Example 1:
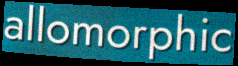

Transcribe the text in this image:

allomorphic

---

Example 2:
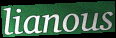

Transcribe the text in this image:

lianous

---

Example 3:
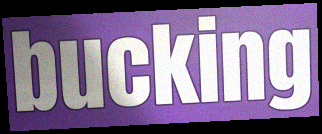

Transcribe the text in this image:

bucking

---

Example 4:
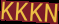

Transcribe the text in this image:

KKKN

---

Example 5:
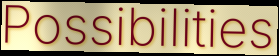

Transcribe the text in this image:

Possibilities